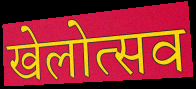
खेलोत्सव